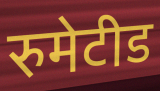
रुमेटीड